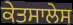
ਕੇਤਸਾਲੇਸ